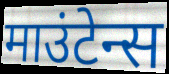
माउंटेन्स